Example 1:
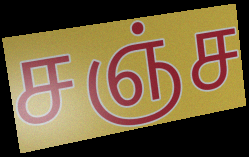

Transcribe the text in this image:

சஞ்ச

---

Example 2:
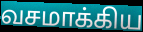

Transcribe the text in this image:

வசமாக்கிய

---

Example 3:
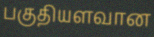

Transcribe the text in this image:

பகுதியளவான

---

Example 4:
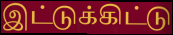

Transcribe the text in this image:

இட்டுக்கிட்டு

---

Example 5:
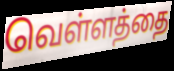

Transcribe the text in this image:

வெள்ளத்தை